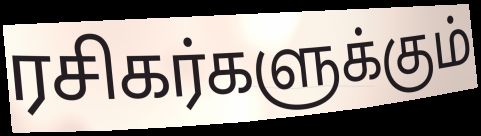
ரசிகர்களுக்கும்